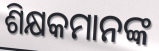
ଶିକ୍ଷକମାନଙ୍କ